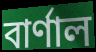
বাৰ্ণাল